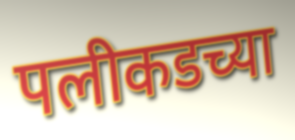
पलीकडच्या